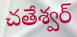
చతేశ్వర్